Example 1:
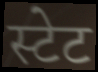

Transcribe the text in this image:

स्टेट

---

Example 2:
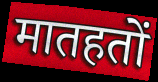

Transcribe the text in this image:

मातहतों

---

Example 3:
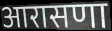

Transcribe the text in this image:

आरासणा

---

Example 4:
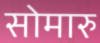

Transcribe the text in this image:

सोमारु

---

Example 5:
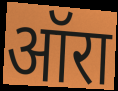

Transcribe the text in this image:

ऑरा